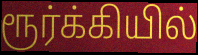
ரூர்க்கியில்